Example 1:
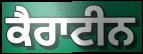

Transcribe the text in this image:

ਕੈਰਾਟੀਨ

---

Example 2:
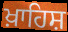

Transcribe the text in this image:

ਖ਼ਾਹਿਸ਼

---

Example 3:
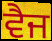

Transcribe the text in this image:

ਵੈਜ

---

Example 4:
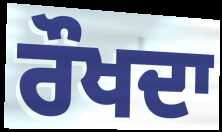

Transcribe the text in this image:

ਰੌਖਦਾ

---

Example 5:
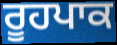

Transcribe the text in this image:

ਰੂਹਪਾਕ